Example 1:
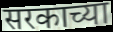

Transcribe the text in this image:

सरकाच्या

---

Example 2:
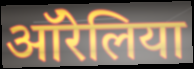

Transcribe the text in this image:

ऑरेलिया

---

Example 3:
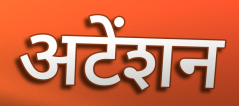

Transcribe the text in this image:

अटेंशन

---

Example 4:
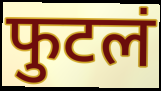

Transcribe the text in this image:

फुटलं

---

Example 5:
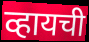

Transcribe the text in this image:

व्हायची